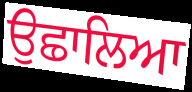
ਉਛਾਲਿਆ